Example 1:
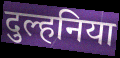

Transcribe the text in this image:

दुल्हनिया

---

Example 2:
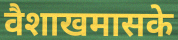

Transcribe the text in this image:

वैशाखमासके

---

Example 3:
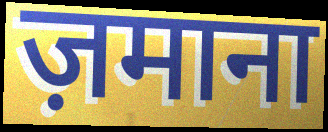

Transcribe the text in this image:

ज़माना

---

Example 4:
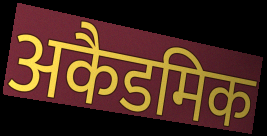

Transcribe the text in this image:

अकैडमिक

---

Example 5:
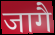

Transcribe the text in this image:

जागै